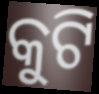
କୁଟି